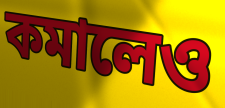
কমালেও